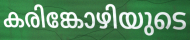
കരിങ്കോഴിയുടെ